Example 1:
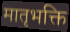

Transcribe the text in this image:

मातृभक्ति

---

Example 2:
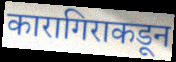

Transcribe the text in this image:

कारागिराकडून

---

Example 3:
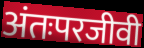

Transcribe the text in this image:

अंतःपरजीवी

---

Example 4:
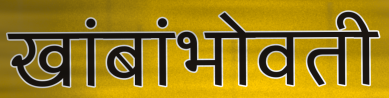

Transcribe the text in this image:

खांबांभोवती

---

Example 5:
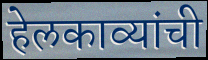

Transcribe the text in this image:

हेलकाव्यांची